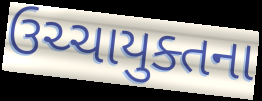
ઉચ્ચાયુક્તના